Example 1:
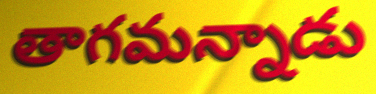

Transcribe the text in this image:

తాగమన్నాడు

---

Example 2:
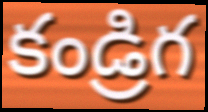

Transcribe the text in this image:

కండ్రిగ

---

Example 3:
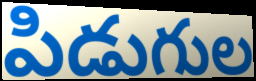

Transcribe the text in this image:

పిడుగుల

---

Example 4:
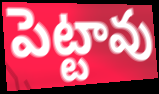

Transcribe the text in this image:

పెట్టావు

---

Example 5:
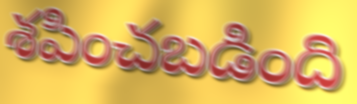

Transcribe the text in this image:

శపించబడింది